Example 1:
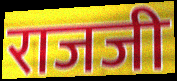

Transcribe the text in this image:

राजजी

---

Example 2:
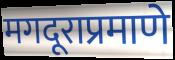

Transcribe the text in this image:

मगदूराप्रमाणे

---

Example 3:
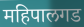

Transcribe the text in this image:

महिपालगड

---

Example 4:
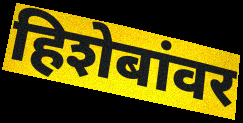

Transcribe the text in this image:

हिशेबांवर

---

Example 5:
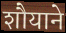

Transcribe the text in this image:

शौयाने